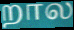
றால